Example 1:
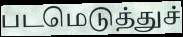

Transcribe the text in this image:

படமெடுத்துச்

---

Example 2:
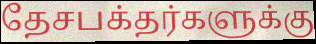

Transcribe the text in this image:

தேசபக்தர்களுக்கு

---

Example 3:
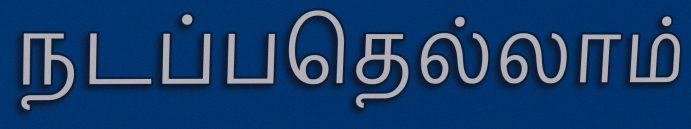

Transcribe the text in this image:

நடப்பதெல்லாம்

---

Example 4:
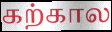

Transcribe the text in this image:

கற்கால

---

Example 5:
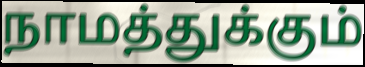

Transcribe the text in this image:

நாமத்துக்கும்